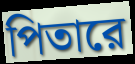
পিতারে